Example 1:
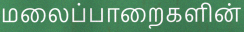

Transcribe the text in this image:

மலைப்பாறைகளின்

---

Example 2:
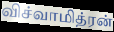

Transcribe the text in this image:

விச்வாமித்ரன்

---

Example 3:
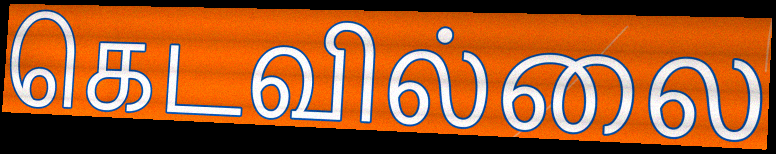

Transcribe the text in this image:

கெடவில்லை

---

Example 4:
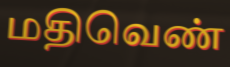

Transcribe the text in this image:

மதிவெண்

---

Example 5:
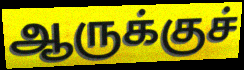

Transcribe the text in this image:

ஆருக்குச்